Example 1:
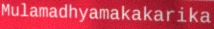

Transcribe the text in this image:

Mulamadhyamakakarika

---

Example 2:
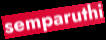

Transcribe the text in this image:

semparuthi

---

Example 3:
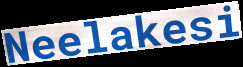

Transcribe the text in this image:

Neelakesi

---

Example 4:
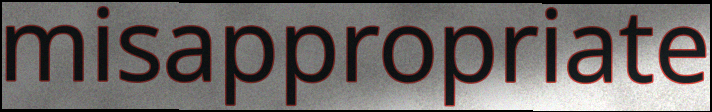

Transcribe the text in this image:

misappropriate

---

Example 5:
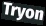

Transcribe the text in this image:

Tryon